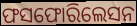
ଫସଫୋରିଲେସନ